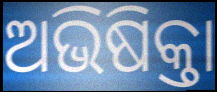
ଅଭିଷିକ୍ତା